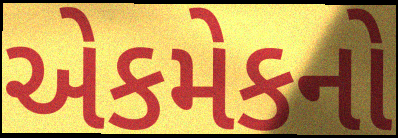
એકમેકનો